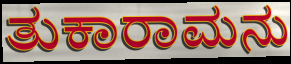
ತುಕಾರಾಮನು